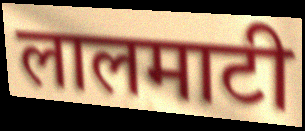
लालमाटी